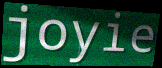
joyie